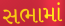
સભામાં